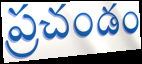
ప్రచండం